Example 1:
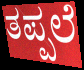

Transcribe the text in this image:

ತಪ್ಪಲೆ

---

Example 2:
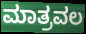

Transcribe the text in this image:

ಮಾತ್ರವಲ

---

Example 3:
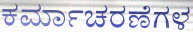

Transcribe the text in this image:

ಕರ್ಮಾಚರಣೆಗಳ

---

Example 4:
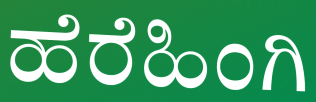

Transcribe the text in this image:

ಹೆರೆಹಿಂಗಿ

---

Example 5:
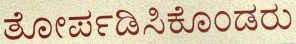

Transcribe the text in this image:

ತೋರ್ಪಡಿಸಿಕೊಂಡರು